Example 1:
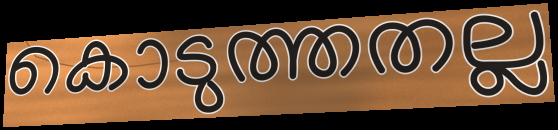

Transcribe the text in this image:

കൊടുത്തതല്ല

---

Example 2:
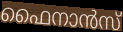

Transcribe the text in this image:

ഫൈനാൻസ്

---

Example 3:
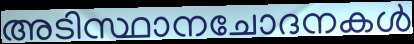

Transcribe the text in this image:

അടിസ്ഥാനചോദനകൾ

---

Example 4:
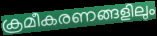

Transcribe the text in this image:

ക്രമീകരണങ്ങളിലും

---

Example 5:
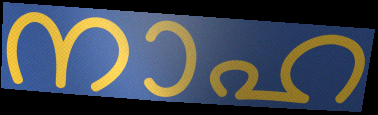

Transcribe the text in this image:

നാഹ